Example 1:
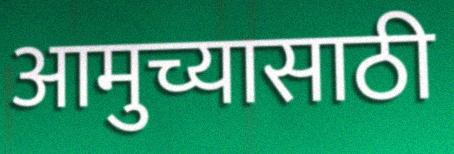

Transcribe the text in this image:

आमुच्यासाठी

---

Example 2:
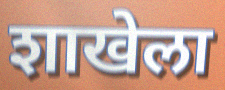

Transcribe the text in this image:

शाखेला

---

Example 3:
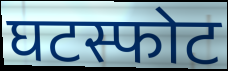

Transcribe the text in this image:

घटस्फोट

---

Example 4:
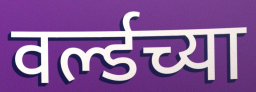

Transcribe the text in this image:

वर्ल्डच्या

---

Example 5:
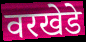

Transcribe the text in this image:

वरखेडे